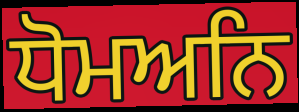
ਧੋਮਅਨਿ